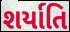
શર્યાતિ